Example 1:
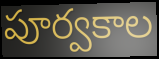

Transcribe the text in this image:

పూర్వకాల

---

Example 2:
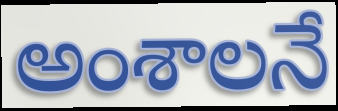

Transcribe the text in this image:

అంశాలనే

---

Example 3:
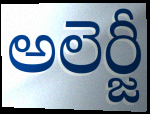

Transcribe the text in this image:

అలెర్జీ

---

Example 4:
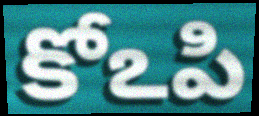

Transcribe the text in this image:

కోఽపి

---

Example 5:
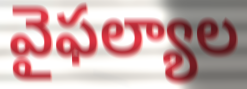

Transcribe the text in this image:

వైఫల్యాల